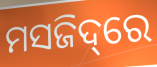
ମସଜିଦ୍‌ରେ